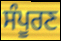
ਸੰਪੂਰਣ